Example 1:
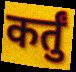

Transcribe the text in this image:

कर्तुं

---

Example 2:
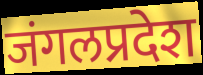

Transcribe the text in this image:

जंगलप्रदेश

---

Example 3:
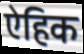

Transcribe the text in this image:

ऐहिक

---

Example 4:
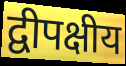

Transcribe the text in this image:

द्वीपक्षीय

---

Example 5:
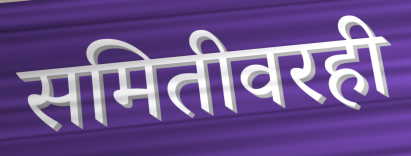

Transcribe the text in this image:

समितीवरही